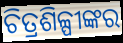
ଚିତ୍ରଶିଳ୍ପୀଙ୍କର